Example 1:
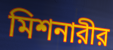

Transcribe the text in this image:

মিশনারীর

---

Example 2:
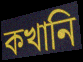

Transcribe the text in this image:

কখানি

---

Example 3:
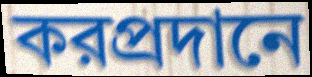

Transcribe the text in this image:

করপ্রদানে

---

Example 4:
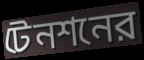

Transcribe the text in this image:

টেনশনের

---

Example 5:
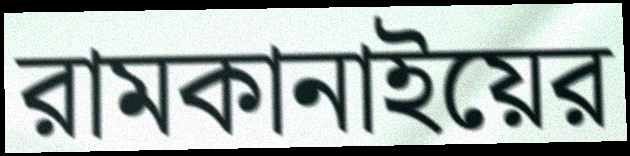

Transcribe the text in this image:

রামকানাইয়ের